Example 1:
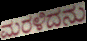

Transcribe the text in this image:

ಮರಳಿದನು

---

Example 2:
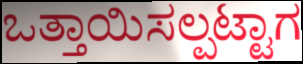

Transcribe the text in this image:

ಒತ್ತಾಯಿಸಲ್ಪಟ್ಟಾಗ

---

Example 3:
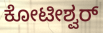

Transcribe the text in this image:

ಕೋಟೀಶ್ವರ್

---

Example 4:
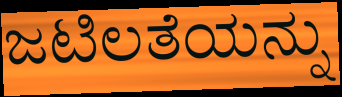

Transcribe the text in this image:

ಜಟಿಲತೆಯನ್ನು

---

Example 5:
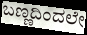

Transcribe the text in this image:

ಬಣ್ಣದಿಂದಲೇ